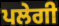
ਪਲੇਗੀ